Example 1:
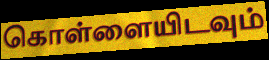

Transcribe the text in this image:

கொள்ளையிடவும்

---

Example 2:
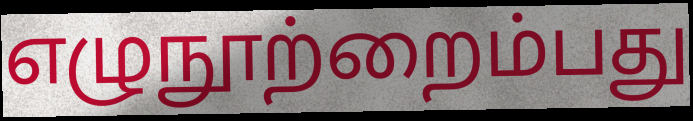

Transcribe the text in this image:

எழுநூற்றைம்பது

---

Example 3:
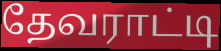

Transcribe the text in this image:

தேவராட்டி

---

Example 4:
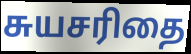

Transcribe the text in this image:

சுயசரிதை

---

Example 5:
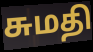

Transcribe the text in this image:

சுமதி